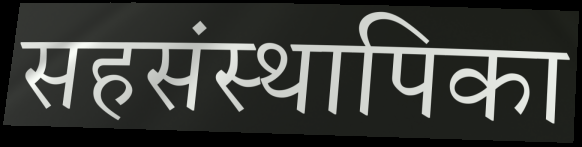
सहसंस्थापिका